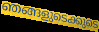
ഞങ്ങളുടെക്കുടെ